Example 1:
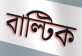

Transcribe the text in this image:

বাল্টিক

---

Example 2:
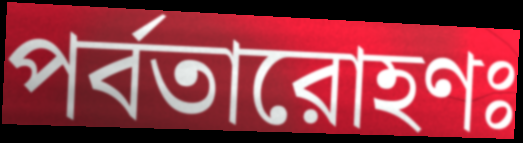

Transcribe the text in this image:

পর্বতারোহণঃ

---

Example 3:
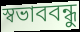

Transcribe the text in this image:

স্বভাববন্ধু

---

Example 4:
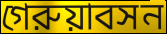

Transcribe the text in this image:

গেরুয়াবসন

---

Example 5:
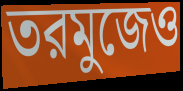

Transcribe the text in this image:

তরমুজেও